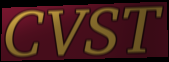
CVST